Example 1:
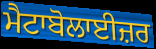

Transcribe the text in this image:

ਮੈਟਾਬੋਲਾਈਜ਼ਰ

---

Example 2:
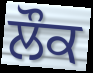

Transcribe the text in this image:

ਲੌਕ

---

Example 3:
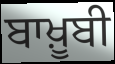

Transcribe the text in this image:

ਬਾਖ਼ੂਬੀ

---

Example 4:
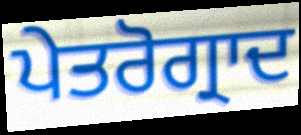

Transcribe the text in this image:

ਪੇਤਰੋਗ੍ਰਾਦ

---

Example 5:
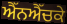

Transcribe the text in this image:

ਐੱਨਐੱਚਕੇ